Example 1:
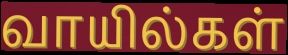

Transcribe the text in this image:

வாயில்கள்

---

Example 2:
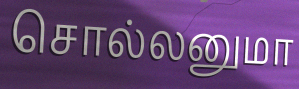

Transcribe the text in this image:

சொல்லனுமா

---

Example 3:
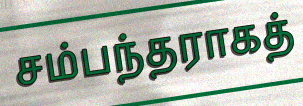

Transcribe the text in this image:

சம்பந்தராகத்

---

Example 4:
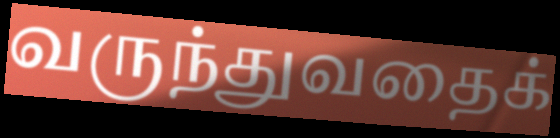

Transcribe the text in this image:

வருந்துவதைக்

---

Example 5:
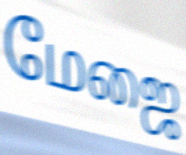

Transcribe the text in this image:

மேஜை